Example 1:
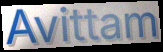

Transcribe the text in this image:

Avittam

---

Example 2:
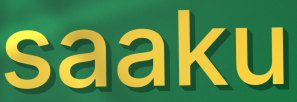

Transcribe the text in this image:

saaku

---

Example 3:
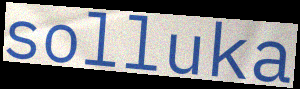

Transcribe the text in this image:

solluka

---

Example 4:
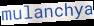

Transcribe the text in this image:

mulanchya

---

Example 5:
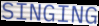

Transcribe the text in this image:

SINGING